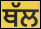
ਥੱਲ